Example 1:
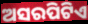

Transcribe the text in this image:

ଅସରପିଟିଏ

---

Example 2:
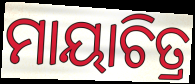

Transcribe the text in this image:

ମାୟାଚିତ୍ର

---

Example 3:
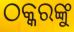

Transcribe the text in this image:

ଠକ୍କରଙ୍କୁ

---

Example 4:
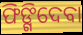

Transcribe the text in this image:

ଫିଙ୍ଗିଦେବା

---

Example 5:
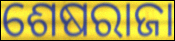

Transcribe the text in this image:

ଶେଷରାଜା